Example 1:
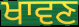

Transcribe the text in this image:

ਖਾਵਣ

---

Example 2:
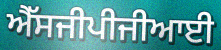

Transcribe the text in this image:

ਐੱਸਜੀਪੀਜੀਆਈ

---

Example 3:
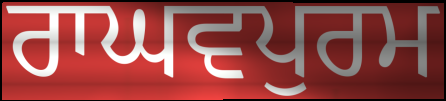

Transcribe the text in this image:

ਰਾਘਵਪੁਰਮ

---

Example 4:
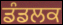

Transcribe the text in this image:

ਡੰਡਲਕ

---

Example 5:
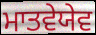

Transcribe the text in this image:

ਮਾਤਵੇਯੇਵ